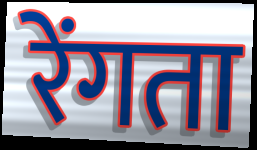
रेंगता